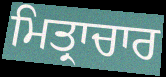
ਮਿਤ੍ਰਾਚਾਰ